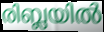
രിബ്ലയിൽ